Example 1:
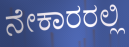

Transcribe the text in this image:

ನೇಕಾರರಲ್ಲಿ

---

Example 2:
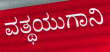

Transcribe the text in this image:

ವತ್ಥಯುಗಾನಿ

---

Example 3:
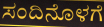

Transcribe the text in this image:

ಸಂದಿನೊಳಗೆ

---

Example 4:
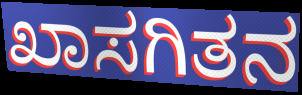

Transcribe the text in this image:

ಖಾಸಗಿತನ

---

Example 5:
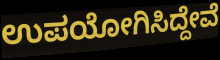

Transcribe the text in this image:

ಉಪಯೋಗಿಸಿದ್ದೇವೆ